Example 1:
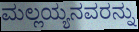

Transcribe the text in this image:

ಮಲ್ಲಯ್ಯನವರನ್ನು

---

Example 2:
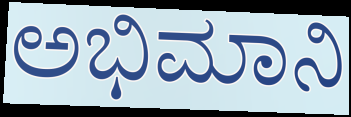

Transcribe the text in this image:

ಅಭಿಮಾನಿ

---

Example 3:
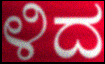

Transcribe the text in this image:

ಳಿದ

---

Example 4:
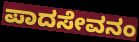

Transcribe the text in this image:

ಪಾದಸೇವನಂ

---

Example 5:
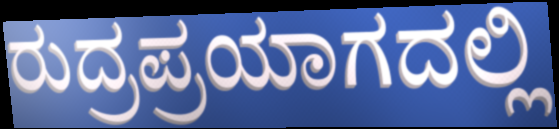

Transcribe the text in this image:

ರುದ್ರಪ್ರಯಾಗದಲ್ಲಿ